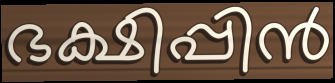
ഭക്ഷിപ്പിൻ